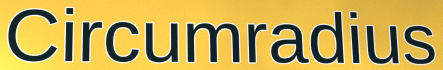
Circumradius